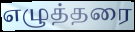
எழுத்தரை